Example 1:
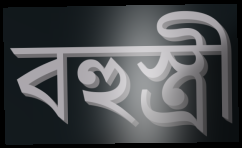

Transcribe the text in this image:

বহুস্ত্ৰী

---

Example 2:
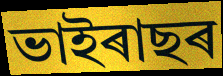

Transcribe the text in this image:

ভাইৰাছৰ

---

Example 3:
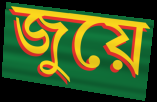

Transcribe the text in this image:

জুয়ে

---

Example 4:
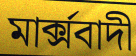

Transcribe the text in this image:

মাৰ্ক্সবাদী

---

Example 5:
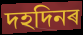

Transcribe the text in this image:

দহদিনৰ